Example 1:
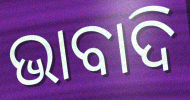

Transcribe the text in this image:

ଭାବାଦି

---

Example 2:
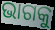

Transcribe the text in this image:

ଭାଗକୁ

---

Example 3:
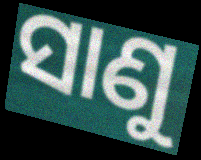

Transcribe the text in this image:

ସାଣୁ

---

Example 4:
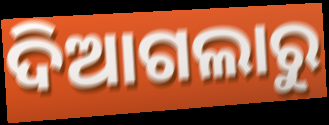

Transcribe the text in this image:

ଦିଆଗଲାରୁ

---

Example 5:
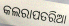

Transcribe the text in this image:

କଲରାପତରିଆ